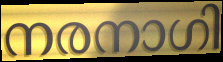
നരനാഗി